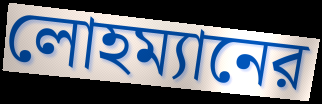
লোহম্যানের